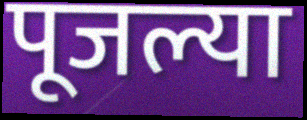
पूजल्या